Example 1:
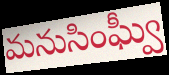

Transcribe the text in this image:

మనుసింఘ్వీ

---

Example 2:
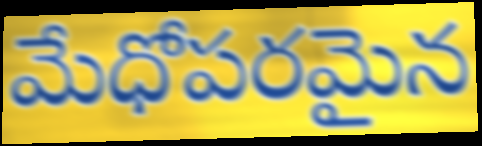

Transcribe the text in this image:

మేధోపరమైన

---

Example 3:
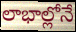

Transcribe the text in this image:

లాభాల్లోనే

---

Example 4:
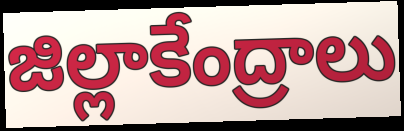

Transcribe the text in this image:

జిల్లాకేంద్రాలు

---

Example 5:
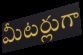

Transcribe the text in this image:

మీటర్లుగా